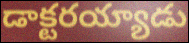
డాక్టరయ్యాడు